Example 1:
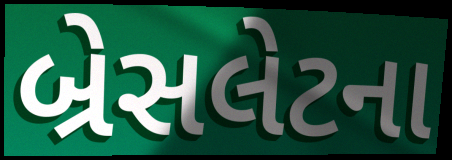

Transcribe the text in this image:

બ્રેસલેટના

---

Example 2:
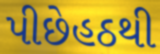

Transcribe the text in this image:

પીછેહઠથી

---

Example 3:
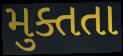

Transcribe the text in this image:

મુક્તતા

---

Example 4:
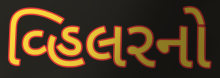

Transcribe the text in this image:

વ્હિલરનો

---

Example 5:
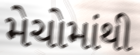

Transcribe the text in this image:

મેચોમાંથી